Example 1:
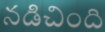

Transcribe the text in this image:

నడిచింది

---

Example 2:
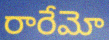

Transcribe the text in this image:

రారేమో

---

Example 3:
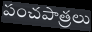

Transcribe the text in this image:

పంచపాత్రలు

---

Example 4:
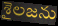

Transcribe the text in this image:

శైలజను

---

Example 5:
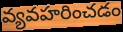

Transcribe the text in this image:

వ్యవహరించడం